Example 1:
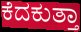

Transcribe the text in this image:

ಕೆದಕುತ್ತಾ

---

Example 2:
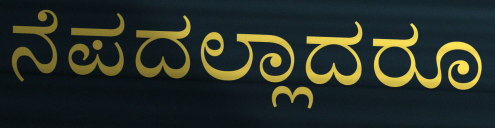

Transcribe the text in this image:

ನೆಪದಲ್ಲಾದರೂ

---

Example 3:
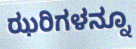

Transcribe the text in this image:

ಝರಿಗಳನ್ನೂ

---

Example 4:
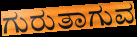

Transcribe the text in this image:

ಗುರುತಾಗುವ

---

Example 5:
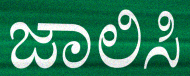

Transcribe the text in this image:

ಜಾಲಿಸಿ